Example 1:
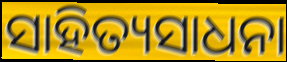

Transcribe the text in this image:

ସାହିତ୍ୟସାଧନା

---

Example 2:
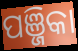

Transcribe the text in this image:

ପଞ୍ଜିକା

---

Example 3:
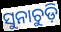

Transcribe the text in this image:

ସୁନାଚୁଡ଼ି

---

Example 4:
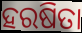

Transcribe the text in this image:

ହରଷିତା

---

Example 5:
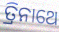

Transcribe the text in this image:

ତ୍ରିନାଥେ